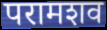
परामशव